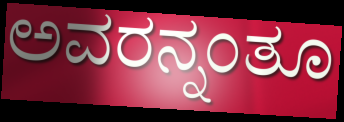
ಅವರನ್ನಂತೂ